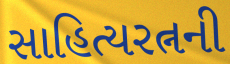
સાહિત્યરત્નની